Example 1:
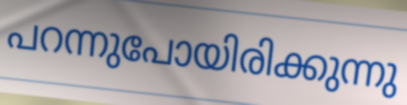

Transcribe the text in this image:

പറന്നുപോയിരിക്കുന്നു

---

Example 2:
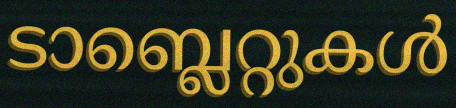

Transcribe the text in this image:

ടാബ്ലെറ്റുകൾ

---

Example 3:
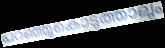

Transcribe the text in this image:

പറഞ്ഞുകൊടുത്താലും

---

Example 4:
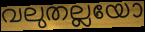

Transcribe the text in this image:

വലുതല്ലയോ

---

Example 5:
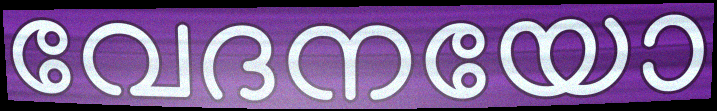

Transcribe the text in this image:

വേദനയോ